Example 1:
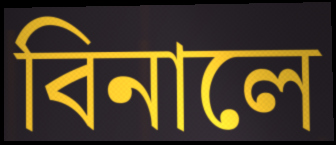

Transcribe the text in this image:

বিনালে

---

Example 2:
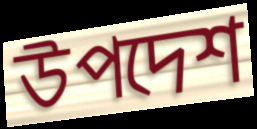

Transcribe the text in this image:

উপদেশ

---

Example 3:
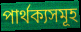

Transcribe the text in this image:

পাৰ্থক্যসমূহ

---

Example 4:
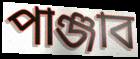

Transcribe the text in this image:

পাঞ্জাব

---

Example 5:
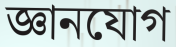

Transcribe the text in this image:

জ্ঞানযোগ